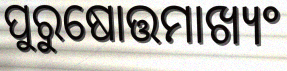
ପୁରୁଷୋତ୍ତମାଖ୍ୟଂ